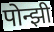
पोन्झी